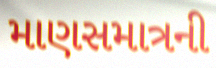
માણસમાત્રની